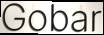
Gobar